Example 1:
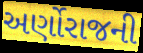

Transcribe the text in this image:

અર્ણોરાજની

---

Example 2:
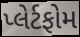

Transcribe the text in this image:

પ્લેર્ટફોમ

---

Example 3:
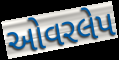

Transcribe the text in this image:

ઓવરલેપ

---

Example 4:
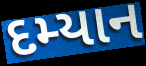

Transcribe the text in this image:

દમ્યાન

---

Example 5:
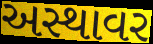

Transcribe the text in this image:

અસ્થાવર